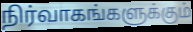
நிர்வாகங்களுக்கும்